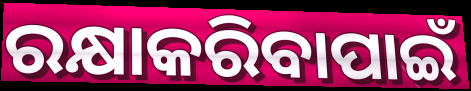
ରକ୍ଷାକରିବାପାଇଁ